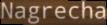
Nagrecha